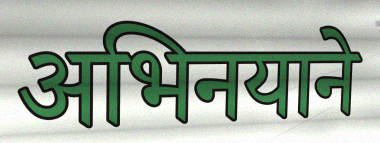
अभिनयाने